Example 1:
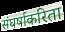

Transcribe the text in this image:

संघर्षाकरिता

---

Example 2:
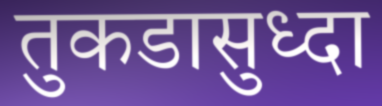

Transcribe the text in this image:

तुकडासुध्दा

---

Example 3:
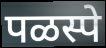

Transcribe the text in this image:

पळस्पे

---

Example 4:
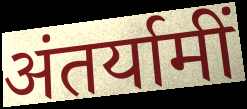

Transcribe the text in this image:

अंतर्यामीं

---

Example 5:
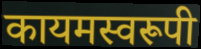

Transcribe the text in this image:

कायमस्वरूपी